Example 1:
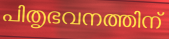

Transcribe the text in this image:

പിതൃഭവനത്തിന്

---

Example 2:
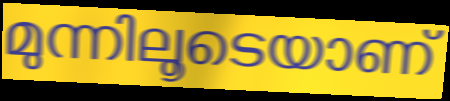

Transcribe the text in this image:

മുന്നിലൂടെയാണ്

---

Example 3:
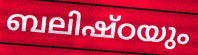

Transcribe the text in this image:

ബലിഷ്ഠയും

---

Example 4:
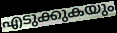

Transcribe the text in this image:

എടുക്കുകയും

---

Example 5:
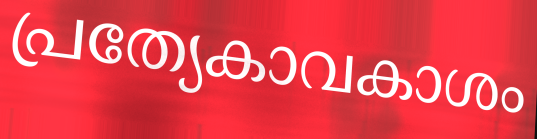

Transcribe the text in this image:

പ്രത്യേകാവകാശം